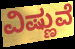
ವಿಷ್ಣುವೆ